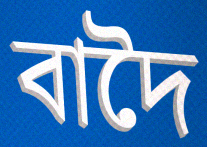
বাদৈ